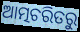
ଆତ୍ମଚରିତରୁ